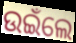
ଉଇଁଲେ